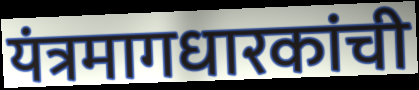
यंत्रमागधारकांची